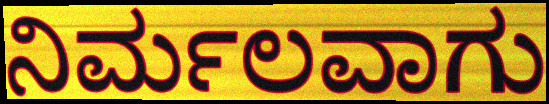
ನಿರ್ಮಲವಾಗು